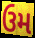
ઉમ